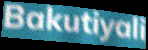
Bakutiyali